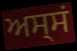
ਅਸ੍ਸਂ